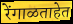
रेंगाळताहेत